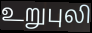
உறுபுலி